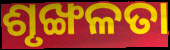
ଶୃଙ୍ଖଳତା